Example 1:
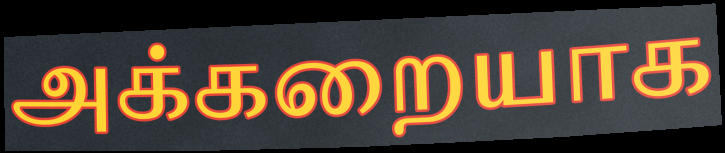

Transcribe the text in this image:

அக்கறையாக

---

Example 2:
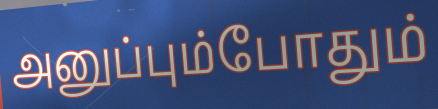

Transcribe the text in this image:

அனுப்பும்போதும்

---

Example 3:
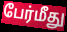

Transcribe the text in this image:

பேர்மீது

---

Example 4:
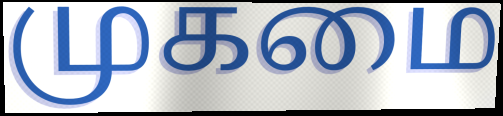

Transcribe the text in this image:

முகமை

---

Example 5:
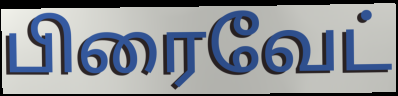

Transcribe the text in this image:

பிரைவேட்